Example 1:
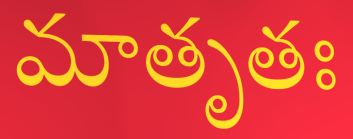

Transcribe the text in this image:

మాతృతః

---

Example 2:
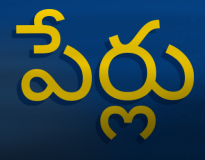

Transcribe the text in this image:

పేర్లు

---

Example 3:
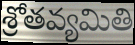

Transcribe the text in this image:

శ్రోతవ్యమితి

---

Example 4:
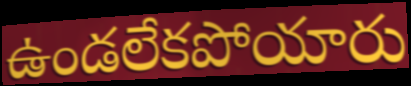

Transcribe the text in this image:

ఉండలేకపోయారు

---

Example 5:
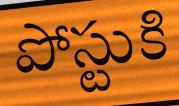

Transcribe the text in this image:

పోస్టుకి